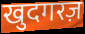
खुदगरज़